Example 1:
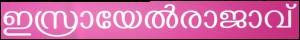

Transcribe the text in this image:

ഇസ്രായേൽരാജാവ്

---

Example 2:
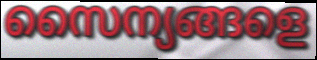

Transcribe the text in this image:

സൈന്യങ്ങളെ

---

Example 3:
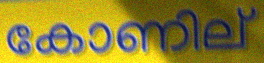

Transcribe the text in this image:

കോണില്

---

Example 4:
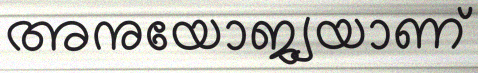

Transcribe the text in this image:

അനുയോജ്യയാണ്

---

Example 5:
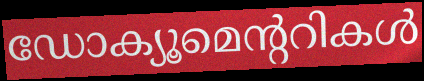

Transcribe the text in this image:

ഡോക്യൂമെന്ററികൾ